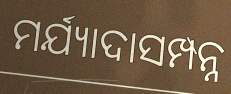
ମର୍ଯ୍ୟାଦାସମ୍ପନ୍ନ